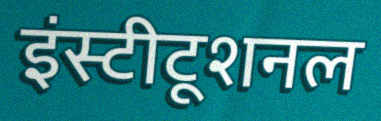
इंस्टीटूशनल